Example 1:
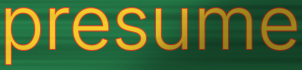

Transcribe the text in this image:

presume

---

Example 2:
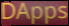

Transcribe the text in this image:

DApps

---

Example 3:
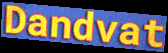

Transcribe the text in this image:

Dandvat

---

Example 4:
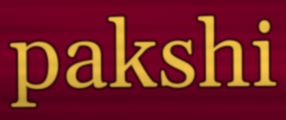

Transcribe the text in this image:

pakshi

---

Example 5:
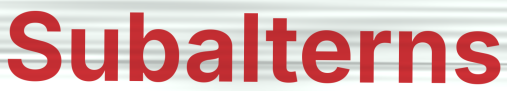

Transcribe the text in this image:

Subalterns